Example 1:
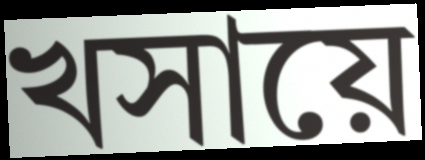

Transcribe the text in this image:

খসায়ে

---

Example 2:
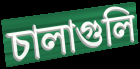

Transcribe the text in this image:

চালাগুলি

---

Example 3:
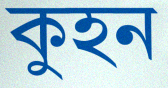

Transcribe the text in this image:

কুহন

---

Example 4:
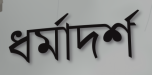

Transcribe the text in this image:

ধর্মাদর্শ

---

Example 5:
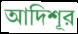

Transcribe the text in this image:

আদিশূর